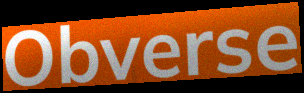
Obverse